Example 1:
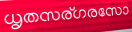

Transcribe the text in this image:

ധൃതസര്ഗരസോ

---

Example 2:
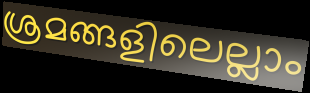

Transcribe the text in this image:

ശ്രമങ്ങളിലെല്ലാം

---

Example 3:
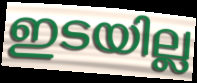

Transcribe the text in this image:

ഇടയില്ല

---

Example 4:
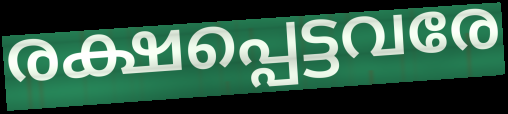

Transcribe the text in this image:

രക്ഷപ്പെട്ടവരേ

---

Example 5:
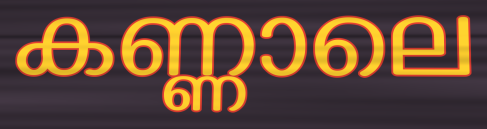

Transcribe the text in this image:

കണ്ണാലെ